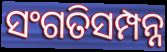
ସଂଗତିସମ୍ପନ୍ନ